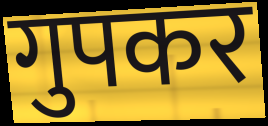
गुपकर